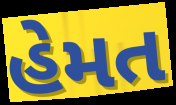
હેમત